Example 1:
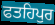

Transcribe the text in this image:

ਫਤਹਿਪੁਰ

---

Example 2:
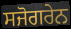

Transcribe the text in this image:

ਸਜੋਗਰੇਨ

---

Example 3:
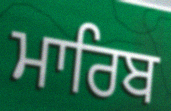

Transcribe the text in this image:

ਮਾਰਿਬ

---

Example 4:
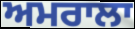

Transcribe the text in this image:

ਅਮਰਾਲਾ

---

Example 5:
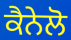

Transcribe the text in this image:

ਕੈਨੇਲੋ